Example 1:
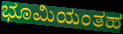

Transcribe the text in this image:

ಭೂಮಿಯಂತಹ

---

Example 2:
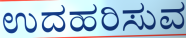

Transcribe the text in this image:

ಉದಹರಿಸುವ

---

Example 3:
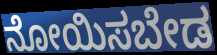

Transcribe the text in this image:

ನೋಯಿಸಬೇಡ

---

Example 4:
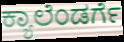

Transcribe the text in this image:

ಕ್ಯಾಲೆಂಡರ್ಗೆ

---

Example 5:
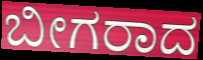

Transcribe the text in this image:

ಬೀಗರಾದ